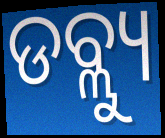
ଡବ୍ଲ୍ୟୁ